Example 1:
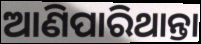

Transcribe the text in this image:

ଆଣିପାରିଥାନ୍ତା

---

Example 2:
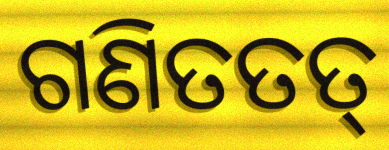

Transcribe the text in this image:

ଗଣିତତତ୍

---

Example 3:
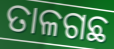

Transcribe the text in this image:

ତାଳଗଛ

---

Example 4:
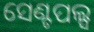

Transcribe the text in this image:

ସେଣ୍ଟପଲ୍ସ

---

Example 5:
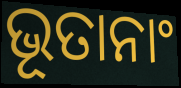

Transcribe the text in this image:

ଭୂତାନାଂ